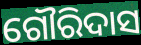
ଗୌରିଦାସ